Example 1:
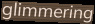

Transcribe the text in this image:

glimmering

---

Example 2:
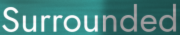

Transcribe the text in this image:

Surrounded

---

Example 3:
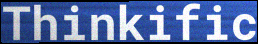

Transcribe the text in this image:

Thinkific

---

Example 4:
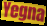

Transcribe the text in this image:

Yegna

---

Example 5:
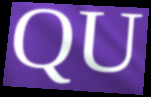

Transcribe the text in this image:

QU